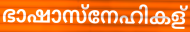
ഭാഷാസ്നേഹികള്